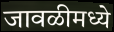
जावळीमध्ये